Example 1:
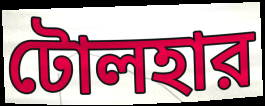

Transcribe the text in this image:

টোলহার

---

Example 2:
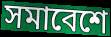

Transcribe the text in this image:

সমাবেশে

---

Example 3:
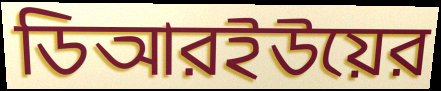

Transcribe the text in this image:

ডিআরইউয়ের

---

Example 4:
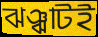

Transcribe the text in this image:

ঝঞ্ঝাটই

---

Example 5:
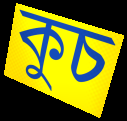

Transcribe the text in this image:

কুচ